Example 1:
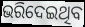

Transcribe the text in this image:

ଭରିଦେଇଥିବ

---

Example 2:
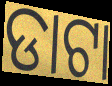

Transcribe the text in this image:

ଡାଟା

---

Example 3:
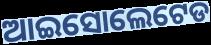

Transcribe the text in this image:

ଆଇସୋଲେଟେଡ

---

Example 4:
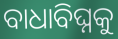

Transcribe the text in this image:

ବାଧାବିଘ୍ନକୁ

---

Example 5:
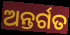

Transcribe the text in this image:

ଅନ୍ତର୍ଗତ